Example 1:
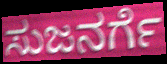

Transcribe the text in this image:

ಸುಜನರ್ಗೆ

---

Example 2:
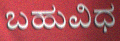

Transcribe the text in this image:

ಬಹುವಿಧ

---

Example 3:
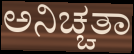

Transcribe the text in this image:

ಅನಿಚ್ಚತಾ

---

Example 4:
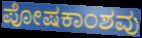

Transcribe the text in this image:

ಪೋಷಕಾಂಶವು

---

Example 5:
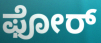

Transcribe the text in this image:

ಫೋರ್